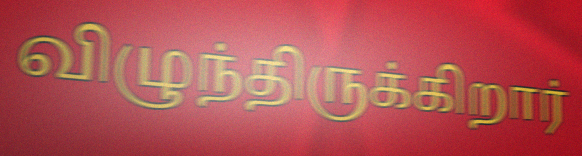
விழுந்திருக்கிறார்